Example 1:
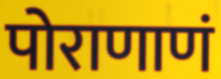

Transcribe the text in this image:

पोराणाणं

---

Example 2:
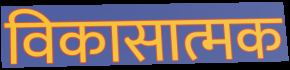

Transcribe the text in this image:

विकासात्मक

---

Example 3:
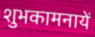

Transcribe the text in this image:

शुभकामनायें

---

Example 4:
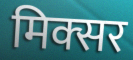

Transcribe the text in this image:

मिक्‍सर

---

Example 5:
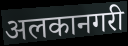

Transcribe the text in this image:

अलकानगरी